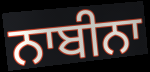
ਨਾਬੀਨਾ